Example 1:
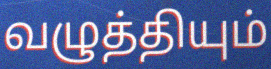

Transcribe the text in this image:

வழுத்தியும்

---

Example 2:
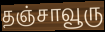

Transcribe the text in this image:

தஞ்சாவூரு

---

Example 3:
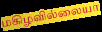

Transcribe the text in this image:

மகிழவில்லையா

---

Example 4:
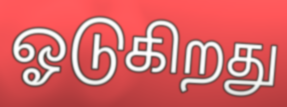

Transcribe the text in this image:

ஓடுகிறது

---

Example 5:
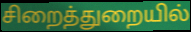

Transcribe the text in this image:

சிறைத்துறையில்